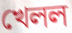
খেলল